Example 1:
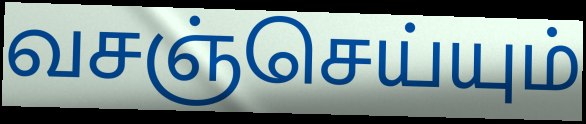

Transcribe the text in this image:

வசஞ்செய்யும்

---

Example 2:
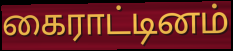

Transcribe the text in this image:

கைராட்டினம்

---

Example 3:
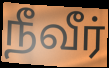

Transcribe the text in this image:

நீவீர்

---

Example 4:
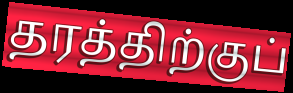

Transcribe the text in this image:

தரத்திற்குப்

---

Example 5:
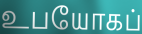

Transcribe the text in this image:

உபயோகப்